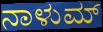
ನಾಳುಮ್